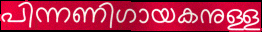
പിന്നണിഗായകനുള്ള